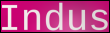
Indus